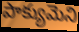
పాక్యుమెని